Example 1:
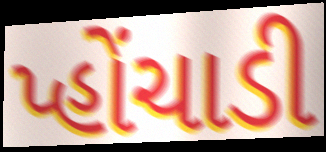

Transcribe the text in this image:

પ્હોંચાડી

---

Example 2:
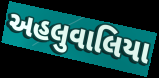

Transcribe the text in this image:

અહલુવાલિયા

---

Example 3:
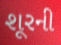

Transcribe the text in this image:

શૂરની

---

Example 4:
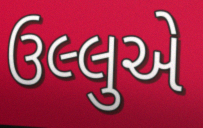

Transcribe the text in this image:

ઉલ્લુએ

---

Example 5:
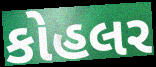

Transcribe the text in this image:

કોહલર